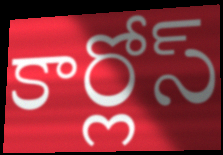
కార్లోస్